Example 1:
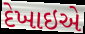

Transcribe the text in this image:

દેખાઇએ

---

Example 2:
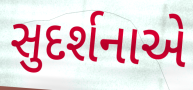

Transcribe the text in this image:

સુદર્શનાએ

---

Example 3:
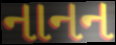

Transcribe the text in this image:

નાનન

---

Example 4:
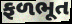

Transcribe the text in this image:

ફળભૂત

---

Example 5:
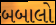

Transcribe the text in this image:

બબાલો